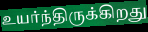
உயர்ந்திருக்கிறது